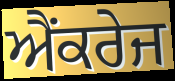
ਐਂਕਰੇਜ